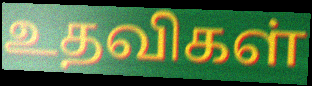
உதவிகள்